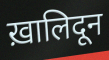
ख़ालिदून